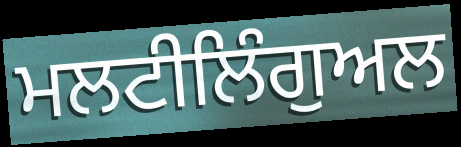
ਮਲਟੀਲਿੰਗੁਅਲ